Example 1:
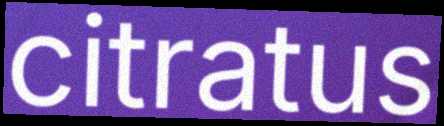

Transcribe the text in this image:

citratus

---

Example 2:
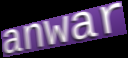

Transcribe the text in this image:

anwar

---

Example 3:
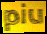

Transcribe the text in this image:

piu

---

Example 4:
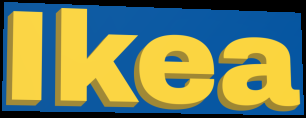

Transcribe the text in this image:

Ikea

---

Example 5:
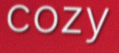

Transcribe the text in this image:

cozy